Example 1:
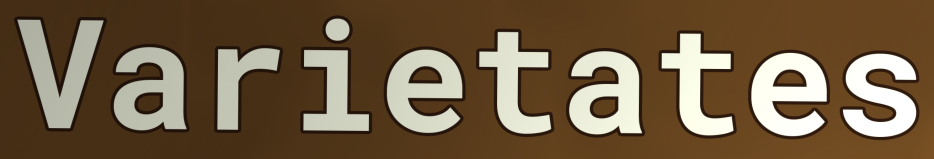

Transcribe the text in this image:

Varietates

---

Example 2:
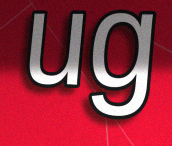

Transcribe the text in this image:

ug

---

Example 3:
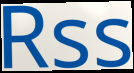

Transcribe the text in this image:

Rss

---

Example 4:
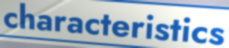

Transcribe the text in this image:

characteristics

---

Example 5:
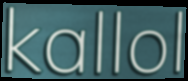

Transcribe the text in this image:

kallol